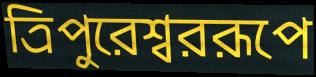
ত্রিপুরেশ্বররূপে